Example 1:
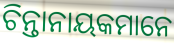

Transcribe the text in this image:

ଚିନ୍ତାନାୟକମାନେ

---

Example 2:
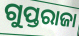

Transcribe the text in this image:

ଗୁପ୍ତରାଜା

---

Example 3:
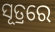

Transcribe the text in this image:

ସୂତ୍ରରେ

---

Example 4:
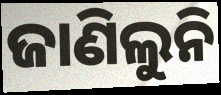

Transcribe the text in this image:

ଜାଣିଲୁନି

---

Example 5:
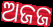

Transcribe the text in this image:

ଅଜଜ